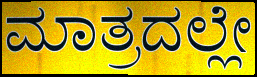
ಮಾತ್ರದಲ್ಲೇ